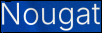
Nougat